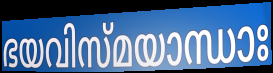
ഭയവിസ്മയാന്ധാഃ